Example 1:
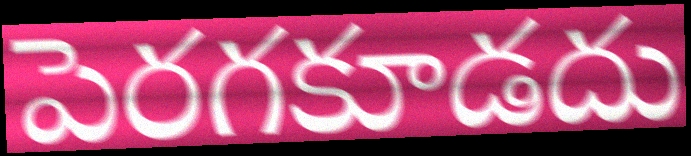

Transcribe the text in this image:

పెరగకూడదు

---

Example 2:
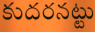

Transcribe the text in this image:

కుదరనట్టు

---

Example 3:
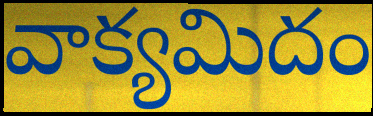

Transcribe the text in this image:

వాక్యమిదం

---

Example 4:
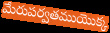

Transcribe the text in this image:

మేరుపర్వతముయొక్క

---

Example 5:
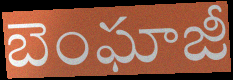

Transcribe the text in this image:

బెంఘాజీ